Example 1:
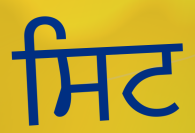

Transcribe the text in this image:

ਸਿਟ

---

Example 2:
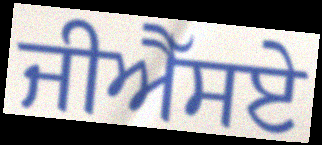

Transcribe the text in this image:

ਜੀਐੱਸਏ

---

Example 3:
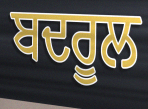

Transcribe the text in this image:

ਬਦਰੂਲ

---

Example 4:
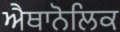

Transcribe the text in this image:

ਐਥਾਨੋਲਿਕ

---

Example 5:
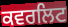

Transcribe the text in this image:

ਕਵਰਲਿਟ